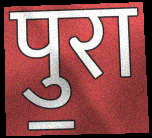
पु॒रा